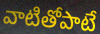
వాటితోపాటే